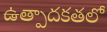
ఉత్పాదకతలో